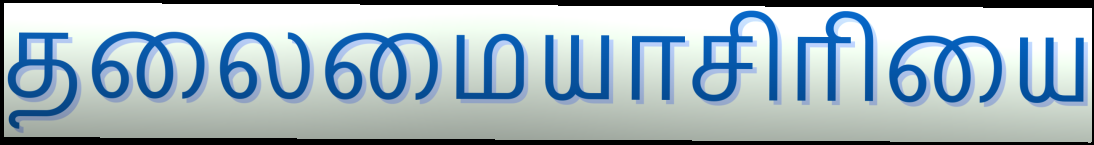
தலைமையாசிரியை